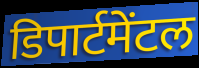
डिपार्टमेंटल